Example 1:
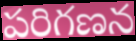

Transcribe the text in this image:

పరిగణన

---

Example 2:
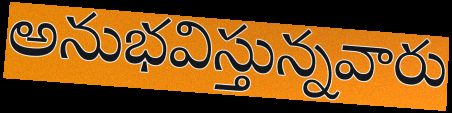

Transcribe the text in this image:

అనుభవిస్తున్నవారు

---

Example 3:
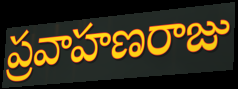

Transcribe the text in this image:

ప్రవాహణరాజు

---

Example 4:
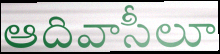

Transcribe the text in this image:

ఆదివాసీలూ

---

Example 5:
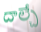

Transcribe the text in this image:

దాల్చే